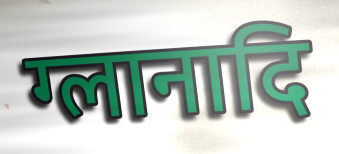
ग्लानादि